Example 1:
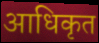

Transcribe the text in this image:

आधिकृत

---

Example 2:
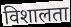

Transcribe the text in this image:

विशालता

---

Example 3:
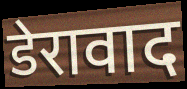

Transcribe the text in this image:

डेरावाद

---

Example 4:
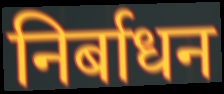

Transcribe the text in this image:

निर्बाधन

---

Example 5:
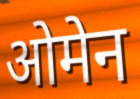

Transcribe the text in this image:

ओमेन